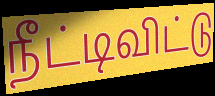
நீட்டிவிட்டு